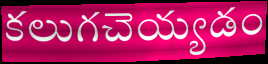
కలుగచెయ్యడం